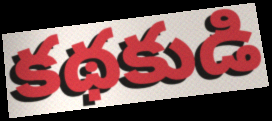
కథకుడి